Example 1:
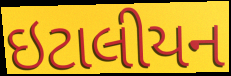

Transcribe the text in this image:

ઇટાલીયન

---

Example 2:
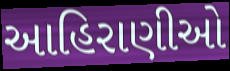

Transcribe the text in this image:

આહિરાણીઓ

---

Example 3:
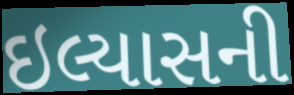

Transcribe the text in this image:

ઇલ્યાસની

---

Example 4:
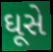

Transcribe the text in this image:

ઘૂસે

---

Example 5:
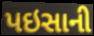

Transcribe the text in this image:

પઇસાની